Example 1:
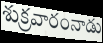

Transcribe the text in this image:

శుక్రవారంనాడు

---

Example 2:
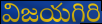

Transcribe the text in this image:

విజయగిరి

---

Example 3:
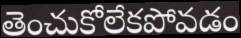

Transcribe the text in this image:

తెంచుకోలేకపోవడం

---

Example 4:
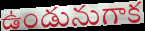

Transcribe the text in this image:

ఉండునుగాక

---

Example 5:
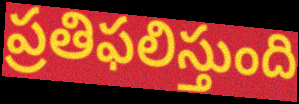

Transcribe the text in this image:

ప్రతిఫలిస్తుంది